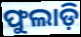
ଫୁଲାଡ଼ି